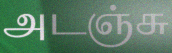
அடஞ்சு